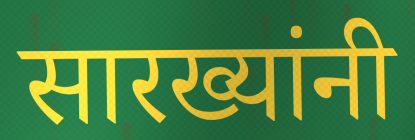
सारख्यांनी